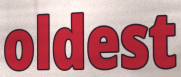
oldest